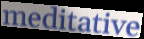
meditative